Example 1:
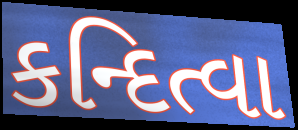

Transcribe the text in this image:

કન્દિત્વા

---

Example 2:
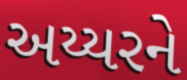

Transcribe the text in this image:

અય્યરને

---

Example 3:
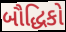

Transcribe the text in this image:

બૌદ્ધિકો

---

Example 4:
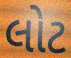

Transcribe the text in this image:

લોટ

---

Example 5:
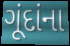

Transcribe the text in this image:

ગૂંદાંના